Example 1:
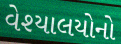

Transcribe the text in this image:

વેશ્યાલયોનો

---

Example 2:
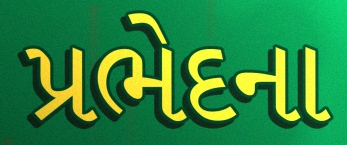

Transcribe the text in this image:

પ્રભેદના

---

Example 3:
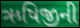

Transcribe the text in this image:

ઋષિજીની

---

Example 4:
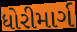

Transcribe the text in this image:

ધોરીમાર્ગ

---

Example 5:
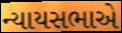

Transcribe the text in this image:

ન્યાયસભાએ